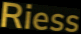
Riess